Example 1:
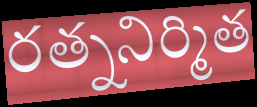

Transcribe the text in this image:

రత్ననిర్మిత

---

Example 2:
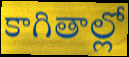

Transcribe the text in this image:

కాగితాల్లో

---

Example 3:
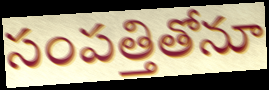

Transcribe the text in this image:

సంపత్తితోనూ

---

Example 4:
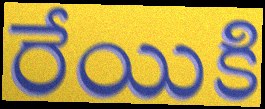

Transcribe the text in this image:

రేయికి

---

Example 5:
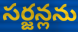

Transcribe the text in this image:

సర్జన్లను